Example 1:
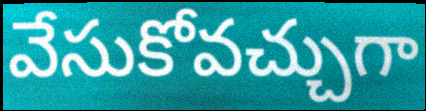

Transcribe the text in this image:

వేసుకోవచ్చుగా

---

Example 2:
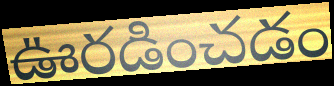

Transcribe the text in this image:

ఊరడించడం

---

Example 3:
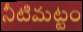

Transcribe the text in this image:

నీటిమట్టం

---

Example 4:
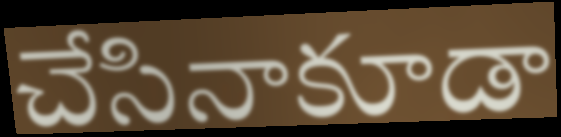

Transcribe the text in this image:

చేసినాకూడా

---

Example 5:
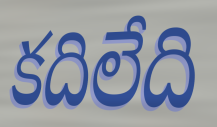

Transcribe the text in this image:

కదిలేది